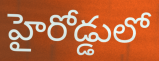
హైరోడ్డులో